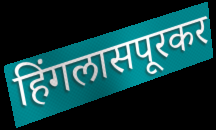
हिंगलासपूरकर